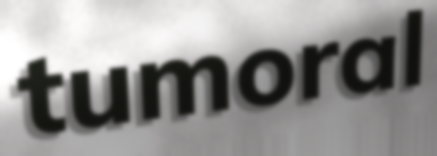
tumoral